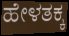
ಹೇಳತಕ್ಕ